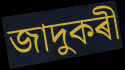
জাদুকৰী